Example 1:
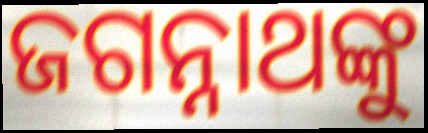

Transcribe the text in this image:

ଜଗନ୍ନାଥଙ୍କୁ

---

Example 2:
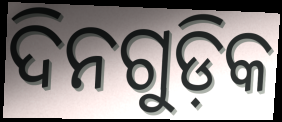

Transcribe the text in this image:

ଦିନଗୁଡ଼ିକ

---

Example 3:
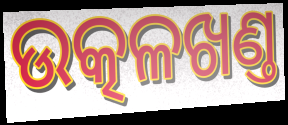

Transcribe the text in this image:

ଉତ୍କଳଖଣ୍ତ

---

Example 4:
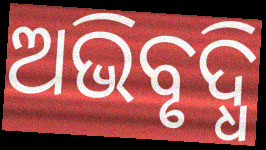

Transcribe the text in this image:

ଅଭିବୃଦ୍ଧି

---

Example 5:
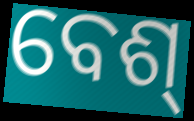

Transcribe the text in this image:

ବେଶ୍